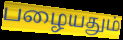
பழையதும்